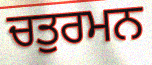
ਚਤੁਰਮਨ